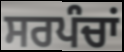
ਸਰਪੰਚਾਂ